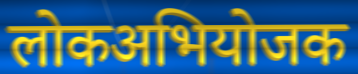
लोकअभियोजक